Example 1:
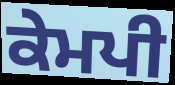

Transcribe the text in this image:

ਕੇਮਪੀ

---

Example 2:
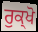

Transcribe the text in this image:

ਰੁਕ੍ਖੋ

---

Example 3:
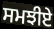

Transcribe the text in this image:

ਸਮਝੀਏ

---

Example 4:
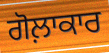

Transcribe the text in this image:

ਗੋਲ਼ਾਕਾਰ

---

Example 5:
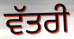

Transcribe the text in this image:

ਵੱਤਰੀ